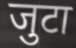
जुटा